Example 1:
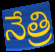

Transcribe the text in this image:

నేత్రి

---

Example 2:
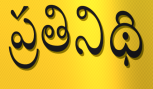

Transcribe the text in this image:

ప్రతినిథి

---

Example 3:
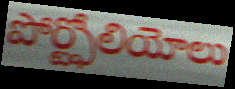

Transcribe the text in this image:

పోర్ట్ఫోలియోలు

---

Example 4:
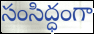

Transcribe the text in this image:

సంసిద్ధంగా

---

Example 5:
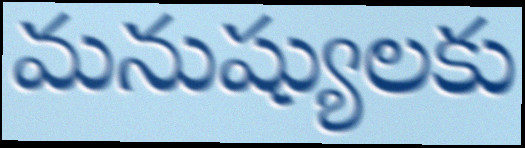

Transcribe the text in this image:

మనుష్యులకు